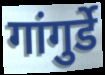
गांगुर्डे